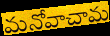
మనోవాచామ